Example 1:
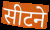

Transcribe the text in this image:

सीटने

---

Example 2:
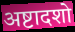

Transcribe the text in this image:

अष्टादशो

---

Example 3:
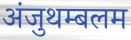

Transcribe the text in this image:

अंजुथम्बलम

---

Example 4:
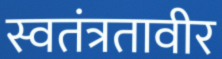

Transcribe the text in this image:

स्वतंत्रतावीर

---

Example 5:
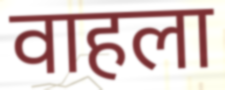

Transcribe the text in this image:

वाहला